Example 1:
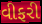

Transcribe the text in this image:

વીફરી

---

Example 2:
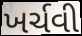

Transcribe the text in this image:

ખર્ચવી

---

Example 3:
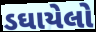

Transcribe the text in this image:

ડઘાયેલો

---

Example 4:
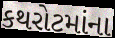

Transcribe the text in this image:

કથરોટમાંના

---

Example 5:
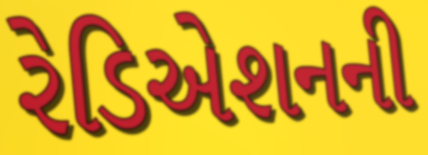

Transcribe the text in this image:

રેડિએશનની